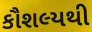
કૌશલ્યથી